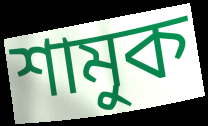
শামুক